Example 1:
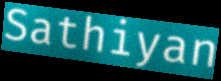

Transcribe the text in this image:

Sathiyan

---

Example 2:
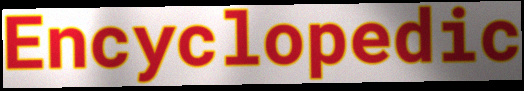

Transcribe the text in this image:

Encyclopedic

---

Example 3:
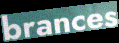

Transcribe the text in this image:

brances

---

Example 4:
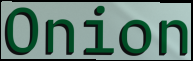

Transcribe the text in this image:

Onion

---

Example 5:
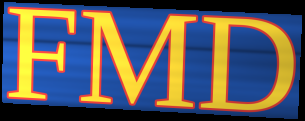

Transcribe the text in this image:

FMD